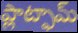
ప్లాట్ఫామ్